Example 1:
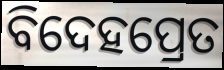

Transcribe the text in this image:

ବିଦେହପ୍ରେତ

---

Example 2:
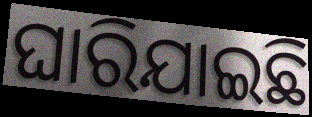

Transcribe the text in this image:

ଘାରିଯାଇଛି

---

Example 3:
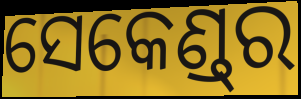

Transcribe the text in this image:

ସେକେଣ୍ଡ୍‌ର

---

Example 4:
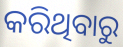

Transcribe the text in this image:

କରିଥିବାରୁ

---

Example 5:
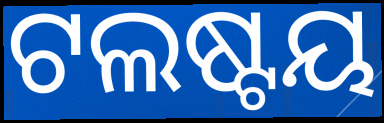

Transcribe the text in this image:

ଟଲଷ୍ଟୟ